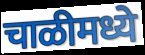
चाळीमध्ये